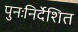
पुनःनिर्देशित